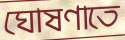
ঘোষণাতে